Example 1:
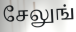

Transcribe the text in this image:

சேலுங்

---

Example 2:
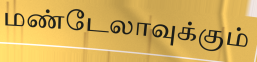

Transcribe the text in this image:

மண்டேலாவுக்கும்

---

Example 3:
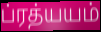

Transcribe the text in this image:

ப்ரத்யயம்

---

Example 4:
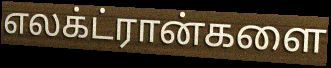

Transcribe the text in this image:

எலக்ட்ரான்களை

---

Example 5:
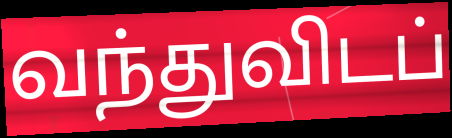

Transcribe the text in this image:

வந்துவிடப்